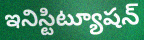
ఇనిస్టిట్యూషన్